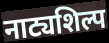
नाट्यशिल्प